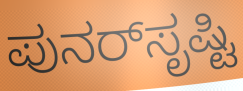
ಪುನರ್‌ಸೃಷ್ಟಿ